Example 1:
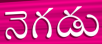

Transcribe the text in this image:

నెగడు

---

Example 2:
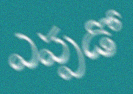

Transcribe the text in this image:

ఎప్పడో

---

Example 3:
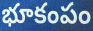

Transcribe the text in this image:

భూకంపం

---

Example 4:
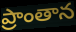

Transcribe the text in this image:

ప్రాంతాన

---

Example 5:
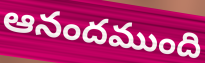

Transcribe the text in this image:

ఆనందముంది